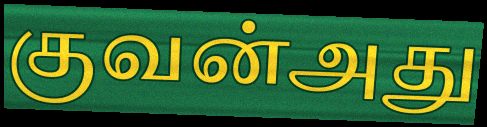
குவன்அது